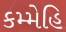
કમ્મેહિ